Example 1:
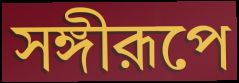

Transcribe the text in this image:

সঙ্গীরূপে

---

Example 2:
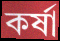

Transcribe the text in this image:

কর্ষা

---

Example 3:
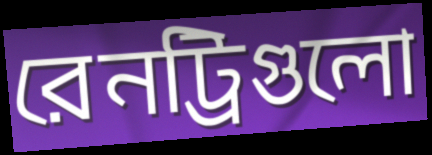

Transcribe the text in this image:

রেনট্রিগুলো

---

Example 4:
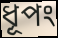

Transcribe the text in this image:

ধূপং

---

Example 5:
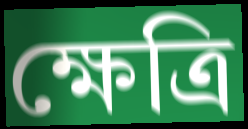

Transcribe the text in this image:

ক্ষেত্রি